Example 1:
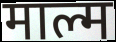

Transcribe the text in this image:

माल्म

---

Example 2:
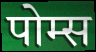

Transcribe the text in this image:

पोम्स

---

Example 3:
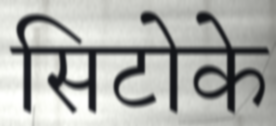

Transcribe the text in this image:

सिटोके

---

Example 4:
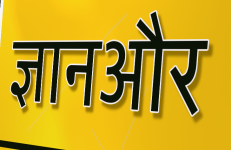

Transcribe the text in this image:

ज्ञानऔर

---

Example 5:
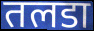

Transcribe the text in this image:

तलडा